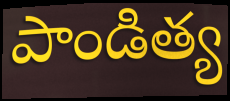
పాండిత్య